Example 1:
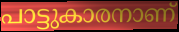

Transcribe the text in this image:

പാട്ടുകാരനാണ്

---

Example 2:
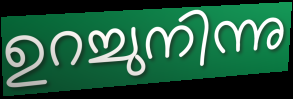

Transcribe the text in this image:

ഉറച്ചുനിന്നു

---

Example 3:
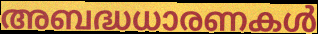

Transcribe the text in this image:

അബദ്ധധാരണകൾ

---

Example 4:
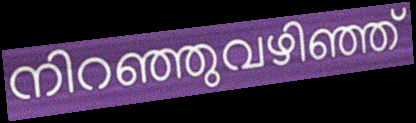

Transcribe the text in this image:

നിറഞ്ഞുവഴിഞ്ഞ്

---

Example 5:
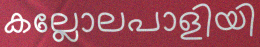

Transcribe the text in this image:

കല്ലോലപാളിയി